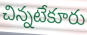
చిన్నటేకూరు